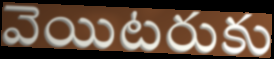
వెయిటరుకు